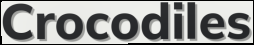
Crocodiles